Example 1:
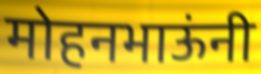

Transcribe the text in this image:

मोहनभाऊंनी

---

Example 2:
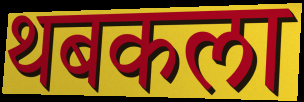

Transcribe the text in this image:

थबकला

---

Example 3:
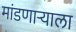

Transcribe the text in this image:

मांडणाऱ्याला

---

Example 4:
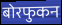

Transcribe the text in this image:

बोरफुकन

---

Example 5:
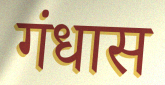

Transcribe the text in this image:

गंधास